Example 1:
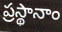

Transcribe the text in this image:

ప్రస్థానాం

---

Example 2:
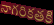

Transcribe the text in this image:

నాగరికతకి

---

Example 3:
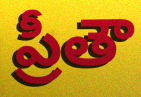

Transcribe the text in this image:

ప్రీతౌ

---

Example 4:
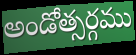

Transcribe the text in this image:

అండోత్సర్గము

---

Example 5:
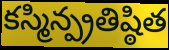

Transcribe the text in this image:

కస్మిన్ప్రతిష్ఠిత